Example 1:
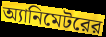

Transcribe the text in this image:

অ্যানিমেটরের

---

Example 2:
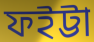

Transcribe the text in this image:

ফইট্টা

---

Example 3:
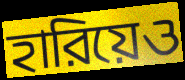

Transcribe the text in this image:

হারিয়েও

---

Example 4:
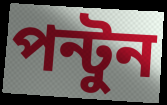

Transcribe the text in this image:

পন্টুন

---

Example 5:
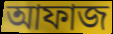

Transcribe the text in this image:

আফাজ